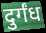
दुर्गंध